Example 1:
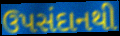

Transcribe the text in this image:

ઉપસંદાનથી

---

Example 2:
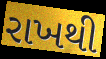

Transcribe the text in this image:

રાખથી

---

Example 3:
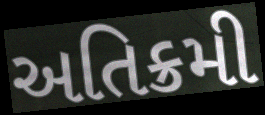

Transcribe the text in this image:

અતિક્રમી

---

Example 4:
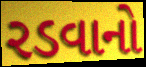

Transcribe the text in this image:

રડવાનો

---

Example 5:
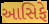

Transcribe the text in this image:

આસિફે